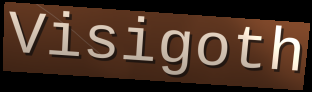
Visigoth